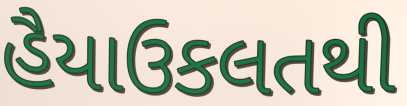
હૈયાઉકલતથી